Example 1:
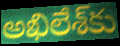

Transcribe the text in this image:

అఖిలేశ్‌కు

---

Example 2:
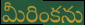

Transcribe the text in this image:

మీరింకను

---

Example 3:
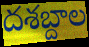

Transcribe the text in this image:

దశబ్దాల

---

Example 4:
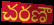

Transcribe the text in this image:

చరణౌ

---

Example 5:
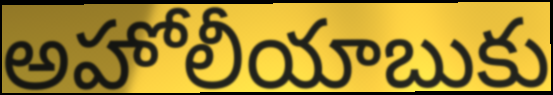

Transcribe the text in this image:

అహోలీయాబుకు